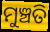
ମୁଞ୍ଚତି